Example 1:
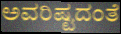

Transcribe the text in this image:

ಅವರಿಷ್ಟದಂತೆ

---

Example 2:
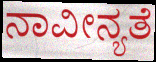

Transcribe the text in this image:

ನಾವೀನ್ಯತೆ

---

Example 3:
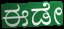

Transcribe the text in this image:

ಈಡೇ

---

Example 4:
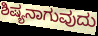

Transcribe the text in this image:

ಶಿಷ್ಯನಾಗುವುದು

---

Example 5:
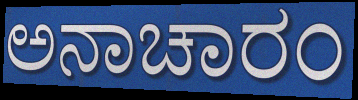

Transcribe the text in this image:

ಅನಾಚಾರಂ